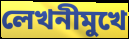
লেখনীমুখে